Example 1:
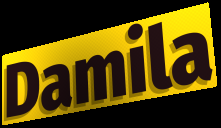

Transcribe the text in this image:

Damila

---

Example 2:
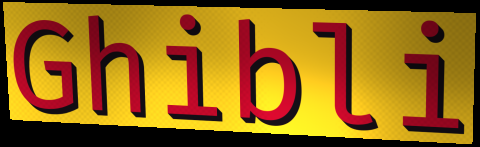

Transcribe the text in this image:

Ghibli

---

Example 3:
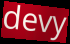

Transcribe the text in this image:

devy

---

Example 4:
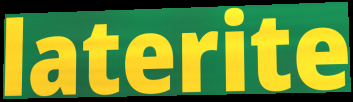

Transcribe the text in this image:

laterite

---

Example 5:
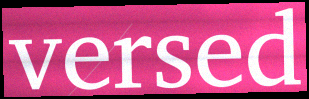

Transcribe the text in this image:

versed